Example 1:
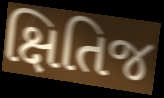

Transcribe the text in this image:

ક્ષિતિજ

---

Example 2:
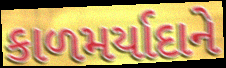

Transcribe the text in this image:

કાળમર્યાદાને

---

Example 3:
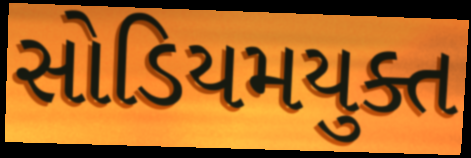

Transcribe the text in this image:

સોડિયમયુક્ત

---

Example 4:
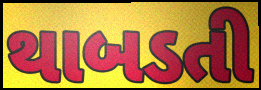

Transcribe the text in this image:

થાબડતી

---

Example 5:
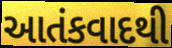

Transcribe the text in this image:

આતંકવાદથી